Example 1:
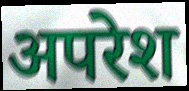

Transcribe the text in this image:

अपरेश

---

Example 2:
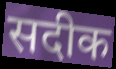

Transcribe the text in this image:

सदीक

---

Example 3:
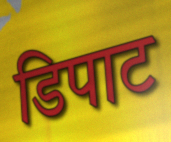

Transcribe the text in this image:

डिपाट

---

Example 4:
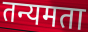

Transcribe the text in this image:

तन्यमता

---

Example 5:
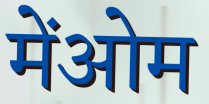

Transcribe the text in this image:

मेंओम